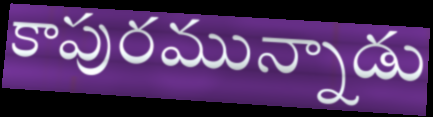
కాపురమున్నాడు